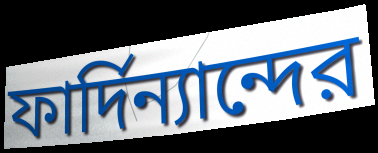
ফার্দিন্যান্দের